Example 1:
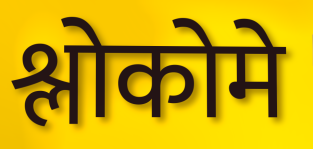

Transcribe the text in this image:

श्लोकोमे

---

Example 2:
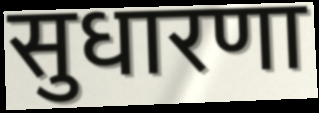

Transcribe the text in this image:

सुधारणा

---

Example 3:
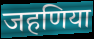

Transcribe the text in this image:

जहणिया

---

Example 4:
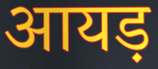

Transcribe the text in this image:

आयड़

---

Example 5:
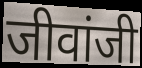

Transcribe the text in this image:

जीवांजी